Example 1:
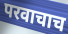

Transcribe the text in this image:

परवाचाच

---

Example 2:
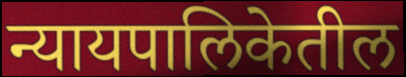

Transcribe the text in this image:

न्यायपालिकेतील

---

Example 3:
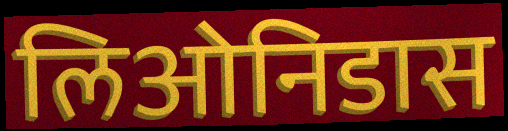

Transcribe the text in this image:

लिओनिडास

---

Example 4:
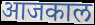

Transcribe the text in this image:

आजकाल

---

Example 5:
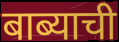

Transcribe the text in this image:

बाब्याची